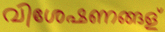
വിശേഷണങ്ങള്